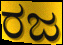
ರಜ